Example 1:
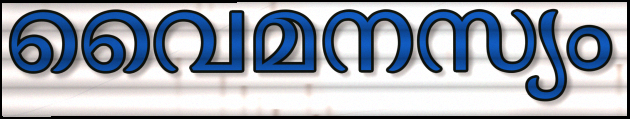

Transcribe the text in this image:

വൈമനസ്യം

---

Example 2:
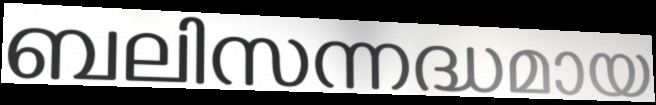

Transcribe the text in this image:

ബലിസന്നദ്ധമായ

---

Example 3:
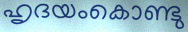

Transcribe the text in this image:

ഹൃദയംകൊണ്ടു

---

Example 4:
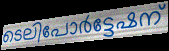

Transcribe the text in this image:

ടെലിപോർട്ടേഷന്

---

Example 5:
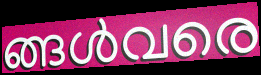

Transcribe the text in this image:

ങ്ങൾവരെ